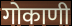
गोकाणी